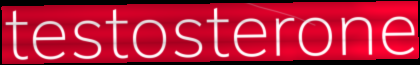
testosterone